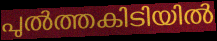
പുൽത്തകിടിയിൽ